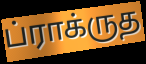
ப்ராக்ருத